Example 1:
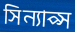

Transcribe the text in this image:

সিন্যাপ্স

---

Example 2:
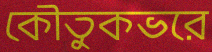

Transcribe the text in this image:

কৌতুকভরে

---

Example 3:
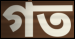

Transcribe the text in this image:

গত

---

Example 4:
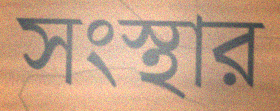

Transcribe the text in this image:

সংস্থার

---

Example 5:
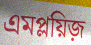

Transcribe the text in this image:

এমপ্লয়িজ়